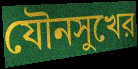
যৌনসুখের